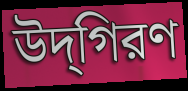
উদ্‌গিরণ